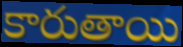
కారుతాయి